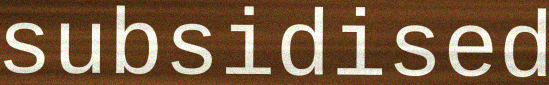
subsidised